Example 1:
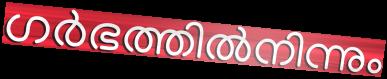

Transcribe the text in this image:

ഗർഭത്തിൽനിന്നും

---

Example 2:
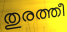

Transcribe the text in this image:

തുരത്തീ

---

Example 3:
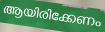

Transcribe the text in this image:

ആയിരിക്കേണം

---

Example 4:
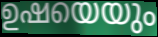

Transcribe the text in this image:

ഉഷയെയും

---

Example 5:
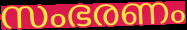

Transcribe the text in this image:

സംഭരണം